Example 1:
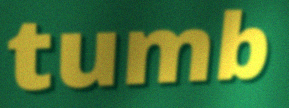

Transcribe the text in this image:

tumb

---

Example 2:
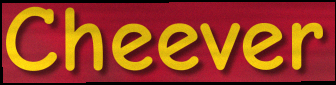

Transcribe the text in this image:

Cheever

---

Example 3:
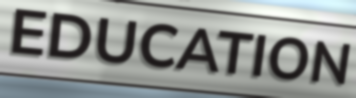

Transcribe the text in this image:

EDUCATION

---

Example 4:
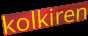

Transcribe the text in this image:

kolkiren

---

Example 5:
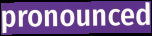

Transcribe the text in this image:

pronounced